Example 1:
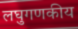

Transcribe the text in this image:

लघुगणकीय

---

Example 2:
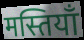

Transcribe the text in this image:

मस्तियाँ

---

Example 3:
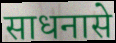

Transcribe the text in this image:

साधनासे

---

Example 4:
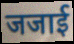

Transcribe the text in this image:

जजाई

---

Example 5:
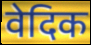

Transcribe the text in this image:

वेदिक